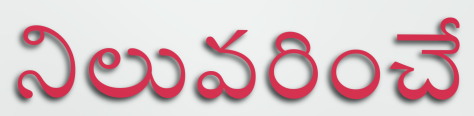
నిలువరించే